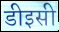
डीइसी